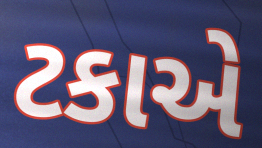
ટકાએ